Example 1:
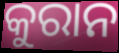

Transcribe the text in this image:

କୁରାନ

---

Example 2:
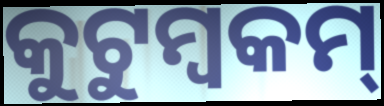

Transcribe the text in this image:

କୁଟୁମ୍ବକମ୍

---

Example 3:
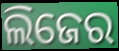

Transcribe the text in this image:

ଲିଜେର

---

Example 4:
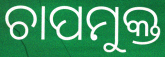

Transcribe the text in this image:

ଚାପମୁକ୍ତ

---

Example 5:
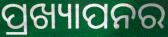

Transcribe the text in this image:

ପ୍ରଖ୍ୟାପନର